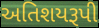
અતિશયરૂપી